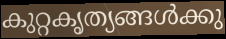
കുറ്റകൃത്യങ്ങൾക്കു